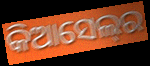
କିଆସେଲ୍‌ର